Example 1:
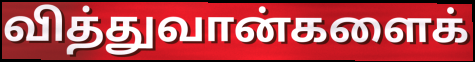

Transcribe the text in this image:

வித்துவான்களைக்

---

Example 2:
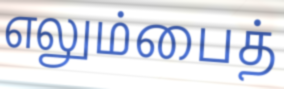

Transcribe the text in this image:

எலும்பைத்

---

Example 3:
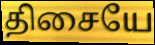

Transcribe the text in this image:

திசையே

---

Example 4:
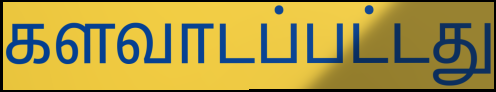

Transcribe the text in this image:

களவாடப்பட்டது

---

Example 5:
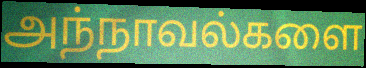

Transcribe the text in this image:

அந்நாவல்களை